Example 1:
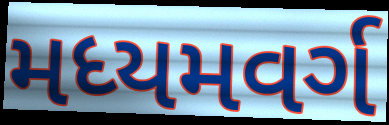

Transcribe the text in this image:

મધ્યમવર્ગ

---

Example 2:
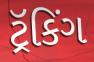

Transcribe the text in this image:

ટ્રૅકિંગ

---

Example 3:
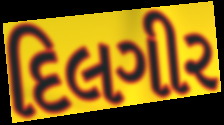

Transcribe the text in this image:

દિલગીર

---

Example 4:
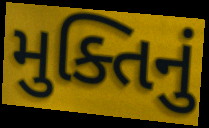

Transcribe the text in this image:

મુક્તિનું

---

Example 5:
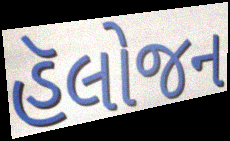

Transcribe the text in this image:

હૅલોજન